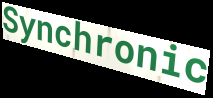
Synchronic